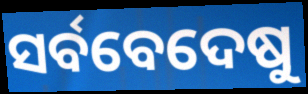
ସର୍ବବେଦେଷୁ